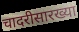
चादरीसारख्या